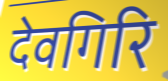
देवगिरि